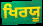
ਖਿਰਯੂ